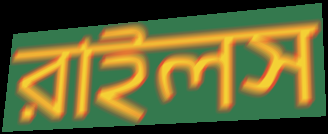
রাইলস